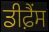
ਡੀਫ਼ੈਂਸ